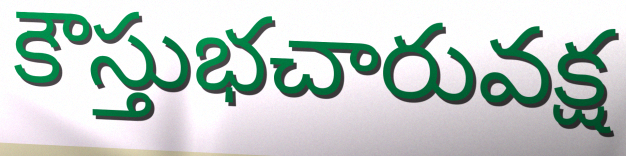
కౌస్తుభచారువక్ష